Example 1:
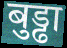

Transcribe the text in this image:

बुड्ढा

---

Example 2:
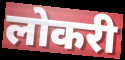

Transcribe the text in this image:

लोकरी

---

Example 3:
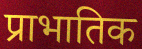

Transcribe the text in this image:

प्राभातिक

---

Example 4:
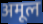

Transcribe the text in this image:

अमूल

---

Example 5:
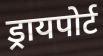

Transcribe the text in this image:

ड्रायपोर्ट